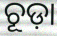
ଚୂଡ଼ା